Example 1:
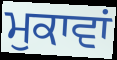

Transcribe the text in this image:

ਮੁਕਾਵਾਂ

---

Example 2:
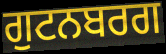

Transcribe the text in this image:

ਗੁਟਨਬਰਗ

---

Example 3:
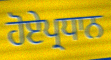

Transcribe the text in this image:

ਹੋਏਪ੍ਰਧਾਨ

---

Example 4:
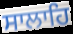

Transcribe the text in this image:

ਸਾਲਾਹਿ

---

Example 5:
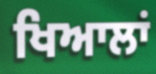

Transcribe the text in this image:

ਖਿਆਲਾਂ